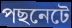
পছনেটে